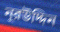
নূরউদ্দিন